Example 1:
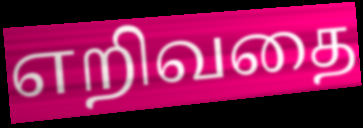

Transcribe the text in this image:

எறிவதை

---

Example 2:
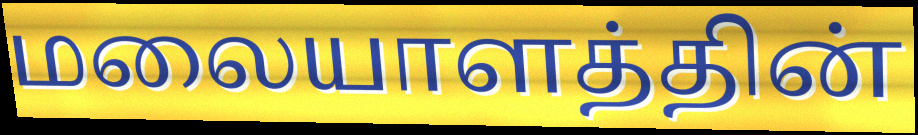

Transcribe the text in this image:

மலையாளத்தின்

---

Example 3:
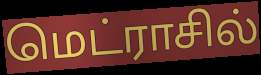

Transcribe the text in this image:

மெட்ராசில்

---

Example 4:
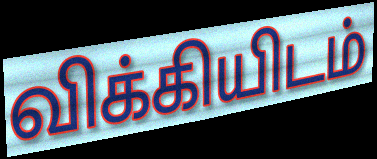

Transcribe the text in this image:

விக்கியிடம்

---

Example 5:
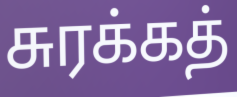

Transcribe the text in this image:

சுரக்கத்